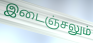
இடைஞ்சலும்